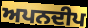
ਅਪਨਦੀਪ